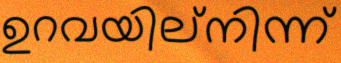
ഉറവയില്നിന്ന്